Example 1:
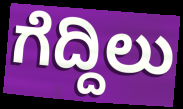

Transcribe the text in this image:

ಗೆದ್ದಿಲು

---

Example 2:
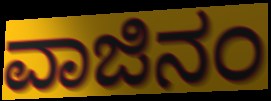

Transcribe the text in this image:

ವಾಜಿನಂ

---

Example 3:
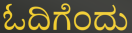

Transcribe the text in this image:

ಓದಿಗೆಂದು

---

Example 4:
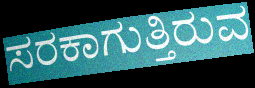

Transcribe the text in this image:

ಸರಕಾಗುತ್ತಿರುವ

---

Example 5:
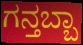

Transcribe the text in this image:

ಗನ್ತಬ್ಬಾ